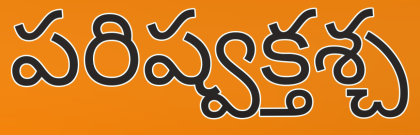
పరిష్వక్తశ్చ